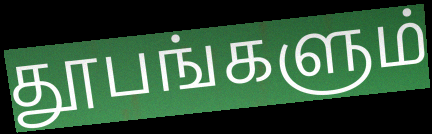
தூபங்களும்